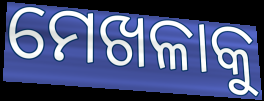
ମେଖଳାକୁ